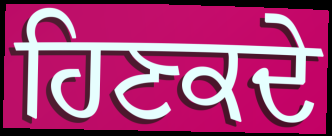
ਹਿਣਕਦੇ